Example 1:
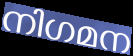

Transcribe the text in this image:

നിഗമന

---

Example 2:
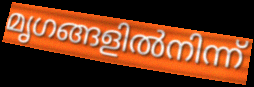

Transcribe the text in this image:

മൃഗങ്ങളിൽനിന്ന്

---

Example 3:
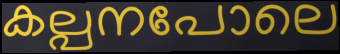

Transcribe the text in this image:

കല്പനപോലെ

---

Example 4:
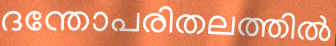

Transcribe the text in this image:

ദന്തോപരിതലത്തിൽ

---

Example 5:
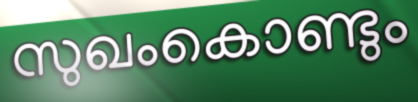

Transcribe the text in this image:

സുഖംകൊണ്ടും